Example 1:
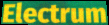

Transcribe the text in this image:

Electrum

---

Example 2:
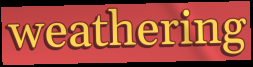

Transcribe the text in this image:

weathering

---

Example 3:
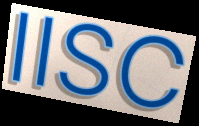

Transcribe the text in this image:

IISC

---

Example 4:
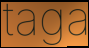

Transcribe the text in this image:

taga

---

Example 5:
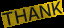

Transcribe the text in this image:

THANK